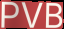
PVB